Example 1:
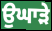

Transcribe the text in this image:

ਉਘਾੜੇ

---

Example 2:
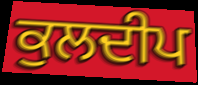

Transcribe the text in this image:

ਕੁਲਦੀਪ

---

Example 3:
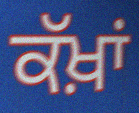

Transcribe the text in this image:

ਕੱਖ਼ਾਂ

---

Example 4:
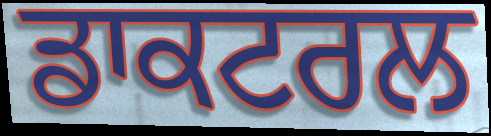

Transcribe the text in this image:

ਡਾਕਟਰਲ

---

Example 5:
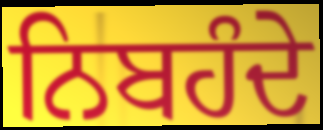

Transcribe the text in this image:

ਨਿਬਹੰਦੇ